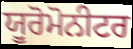
ਯੂਰੋਮੋਨੀਟਰ